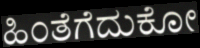
ಹಿಂತೆಗೆದುಕೋ